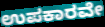
ಉಪಕಾರವೇ